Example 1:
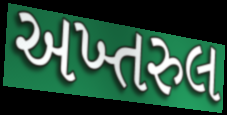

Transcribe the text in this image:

અખ્તરુલ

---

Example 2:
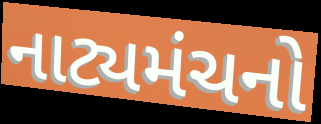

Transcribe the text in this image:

નાટ્યમંચનો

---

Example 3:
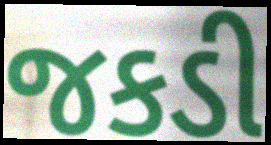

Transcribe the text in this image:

જકડી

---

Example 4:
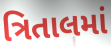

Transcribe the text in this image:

ત્રિતાલમાં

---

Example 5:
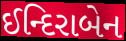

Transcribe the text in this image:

ઈન્દિરાબેન